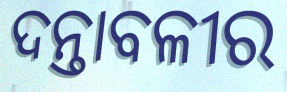
ଦନ୍ତାବଳୀର